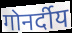
गोनर्दीय